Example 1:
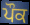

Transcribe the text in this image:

ਪੌਕ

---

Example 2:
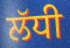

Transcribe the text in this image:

ਲੱਧੀ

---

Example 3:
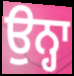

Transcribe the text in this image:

ਉਨ੍ਹਾ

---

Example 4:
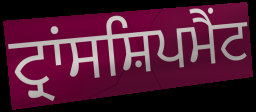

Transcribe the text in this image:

ਟ੍ਰਾਂਸਸ਼ਿਪਮੈਂਟ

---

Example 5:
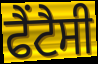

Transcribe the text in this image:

ਫੈਂਟੈਸੀ